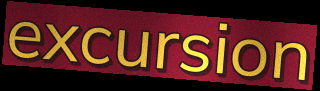
excursion